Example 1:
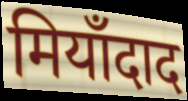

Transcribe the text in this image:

मियाँदाद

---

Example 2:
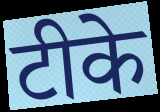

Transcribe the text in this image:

टीके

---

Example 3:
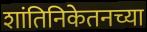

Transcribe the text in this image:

शांतिनिकेतनच्या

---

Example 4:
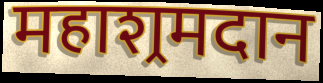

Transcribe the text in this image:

महाश्रमदान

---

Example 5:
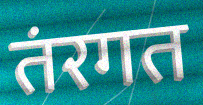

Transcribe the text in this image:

तंरगत